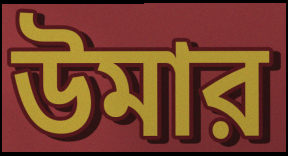
উমার